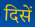
दिसें